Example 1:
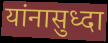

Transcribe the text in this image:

यांनासुध्दा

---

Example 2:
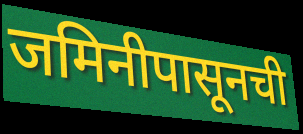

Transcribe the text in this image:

जमिनीपासूनची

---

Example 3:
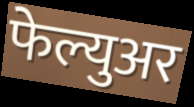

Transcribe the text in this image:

फेल्युअर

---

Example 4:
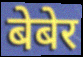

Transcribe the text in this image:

बेबेर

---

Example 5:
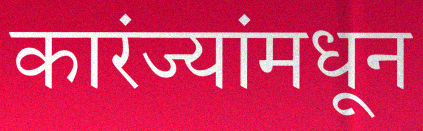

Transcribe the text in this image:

कारंज्यांमधून